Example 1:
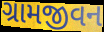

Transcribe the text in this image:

ગ્રામજીવન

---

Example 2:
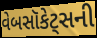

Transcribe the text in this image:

વેબસૉકેટ્સની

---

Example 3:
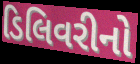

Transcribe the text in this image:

ડિલિવરીનો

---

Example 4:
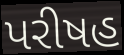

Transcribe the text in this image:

પરીષહ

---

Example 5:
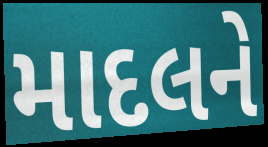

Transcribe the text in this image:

માદલને